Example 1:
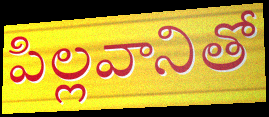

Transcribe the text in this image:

పిల్లవానితో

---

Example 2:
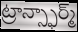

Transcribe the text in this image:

ట్రాన్స్ఫార్మ్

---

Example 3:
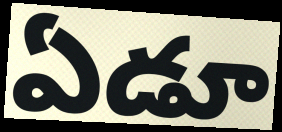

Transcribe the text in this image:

ఏడూ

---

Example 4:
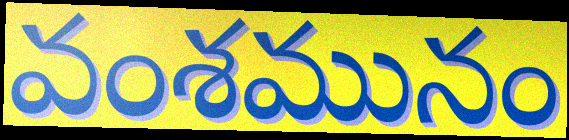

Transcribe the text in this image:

వంశమునం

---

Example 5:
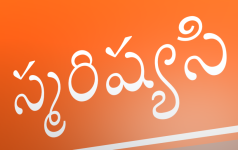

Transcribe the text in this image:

స్మరిష్యసి